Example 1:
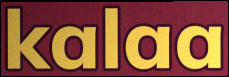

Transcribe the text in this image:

kalaa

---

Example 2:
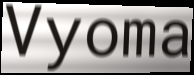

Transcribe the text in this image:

Vyoma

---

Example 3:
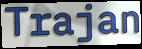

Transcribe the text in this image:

Trajan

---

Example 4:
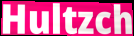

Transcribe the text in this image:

Hultzch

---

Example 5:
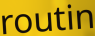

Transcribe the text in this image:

routin